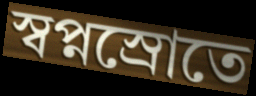
স্বপ্নস্রোতে